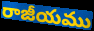
రాజీయము